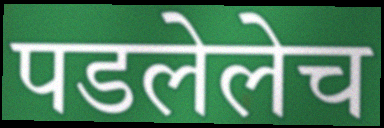
पडलेलेच